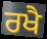
ਰਖੈ